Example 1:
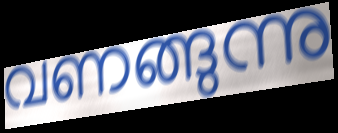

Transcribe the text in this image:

വണങ്ങുന്നു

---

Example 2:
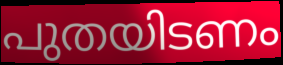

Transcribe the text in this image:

പുതയിടണം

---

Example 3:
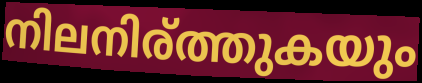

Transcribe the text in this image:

നിലനിര്ത്തുകയും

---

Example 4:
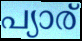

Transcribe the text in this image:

പ്യാര്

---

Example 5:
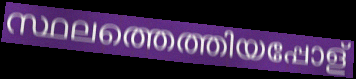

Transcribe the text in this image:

സ്ഥലത്തെത്തിയപ്പോള്